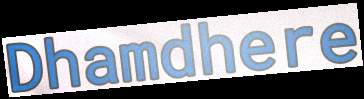
Dhamdhere